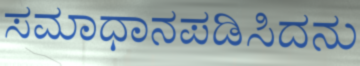
ಸಮಾಧಾನಪಡಿಸಿದನು